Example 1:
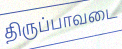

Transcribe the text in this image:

திருப்பாவடை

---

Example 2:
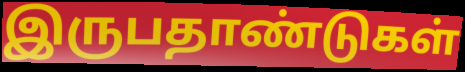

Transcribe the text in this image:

இருபதாண்டுகள்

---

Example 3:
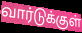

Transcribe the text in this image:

வார்டுக்குள்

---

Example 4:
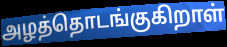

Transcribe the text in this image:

அழத்தொடங்குகிறாள்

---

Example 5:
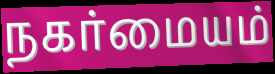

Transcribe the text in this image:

நகர்மையம்